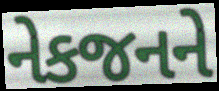
નેકજનને